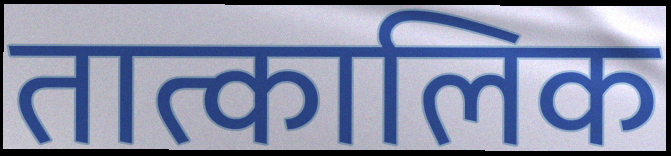
तात्कालिक